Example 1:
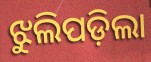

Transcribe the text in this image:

ଝୁଲିପଡ଼ିଲା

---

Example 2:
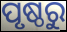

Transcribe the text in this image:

ପୃଷ୍ଠରୁ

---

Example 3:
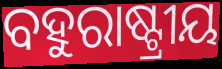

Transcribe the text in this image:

ବହୁରାଷ୍ଟ୍ରୀୟ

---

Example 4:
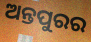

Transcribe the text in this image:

ଅନ୍ତପୁରର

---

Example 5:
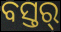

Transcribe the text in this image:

ବସ୍ତର୍